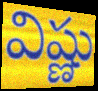
విష్ణు